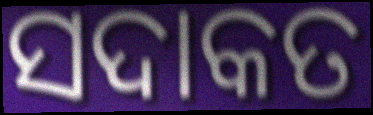
ସଦାକତ